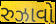
રુઝાવો